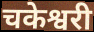
चकेश्वरी